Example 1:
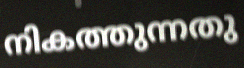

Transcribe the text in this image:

നികത്തുന്നതു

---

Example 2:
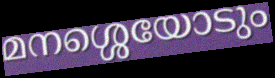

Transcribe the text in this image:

മനശ്ശെയോടും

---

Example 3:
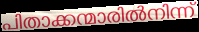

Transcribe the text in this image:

പിതാക്കന്മാരിൽനിന്ന്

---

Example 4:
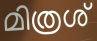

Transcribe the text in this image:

മിത്രശ്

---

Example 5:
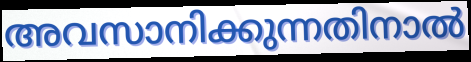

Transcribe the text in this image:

അവസാനിക്കുന്നതിനാൽ